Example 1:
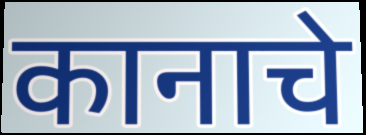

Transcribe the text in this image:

कानाचे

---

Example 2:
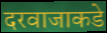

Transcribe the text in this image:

दरवाजाकडे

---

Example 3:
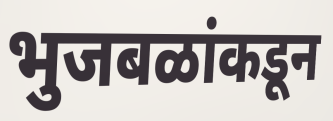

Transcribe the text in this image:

भुजबळांकडून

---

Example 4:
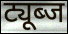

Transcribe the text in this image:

ट्यूब्ज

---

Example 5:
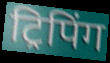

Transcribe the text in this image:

ट्रिपिंग